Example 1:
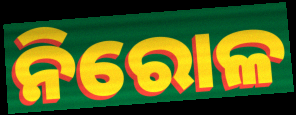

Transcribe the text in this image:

ନିରୋଳ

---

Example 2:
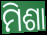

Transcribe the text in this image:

ମିଶା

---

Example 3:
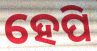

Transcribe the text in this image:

ହେପି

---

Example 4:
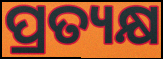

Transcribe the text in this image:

ପ୍ରତ୍ୟକ୍ଷ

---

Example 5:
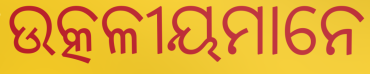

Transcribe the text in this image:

ଉତ୍କଳୀୟମାନେ